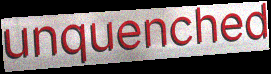
unquenched